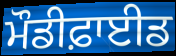
ਮੌਡੀਫ਼ਾਈਡ